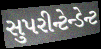
સુપરીન્ટેન્ડેન્ટ